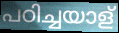
പഠിച്ചയാള്